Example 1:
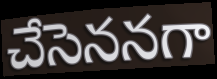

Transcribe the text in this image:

చేసెననగా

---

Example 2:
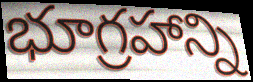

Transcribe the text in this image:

భూగ్రహాన్ని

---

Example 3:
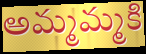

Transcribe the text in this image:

అమ్మమ్మకి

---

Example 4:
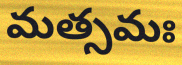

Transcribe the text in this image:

మత్సమః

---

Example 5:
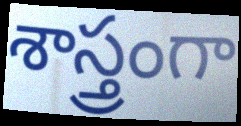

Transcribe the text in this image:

శాస్త్రంగా